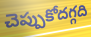
చెప్పుకోదగ్గది